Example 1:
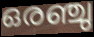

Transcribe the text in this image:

ഒരഞ്ചു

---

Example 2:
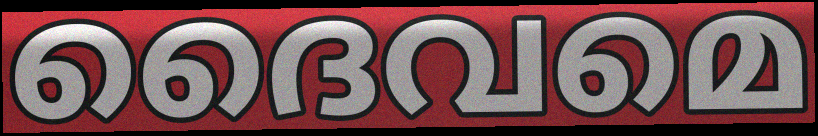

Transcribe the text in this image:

ദൈവമെ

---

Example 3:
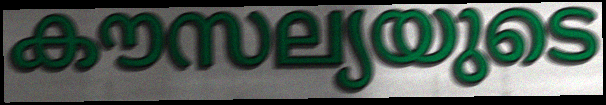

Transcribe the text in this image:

കൗസല്യയുടെ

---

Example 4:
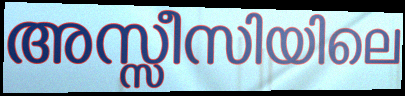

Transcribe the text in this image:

അസ്സീസിയിലെ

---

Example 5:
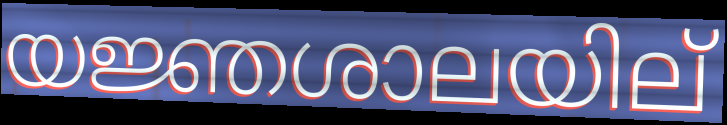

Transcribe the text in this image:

യജ്ഞശാലയില്